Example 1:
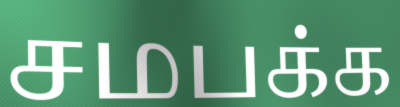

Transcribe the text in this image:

சமபக்க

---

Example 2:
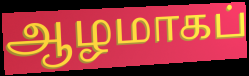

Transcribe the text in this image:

ஆழமாகப்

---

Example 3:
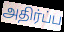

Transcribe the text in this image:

அதிர்ப்ப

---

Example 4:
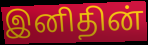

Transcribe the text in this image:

இனிதின்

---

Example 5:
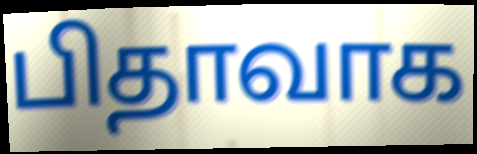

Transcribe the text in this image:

பிதாவாக